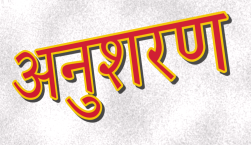
अनुशरण